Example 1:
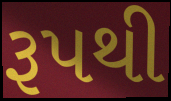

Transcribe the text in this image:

રૂપથી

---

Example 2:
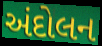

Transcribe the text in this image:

અંદોલન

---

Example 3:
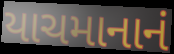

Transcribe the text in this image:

યાચમાનાનં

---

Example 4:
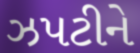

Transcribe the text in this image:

ઝપટીને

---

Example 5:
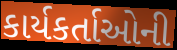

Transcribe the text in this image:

કાર્યકર્તાઓની